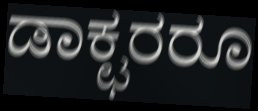
ಡಾಕ್ಟರರೂ